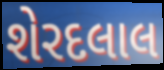
શેરદલાલ